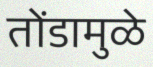
तोंडामुळे